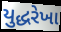
યુદ્ધરેખા